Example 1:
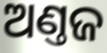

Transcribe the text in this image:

ଅଣ୍ତଜ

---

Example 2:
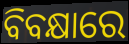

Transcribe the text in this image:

ବିବକ୍ଷାରେ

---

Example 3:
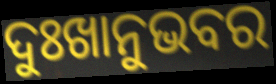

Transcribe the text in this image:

ଦୁଃଖାନୁଭବର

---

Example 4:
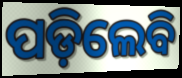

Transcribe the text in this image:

ପଡ଼ିଲେବି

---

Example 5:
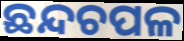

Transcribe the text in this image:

ଛନ୍ଦଚପଳ